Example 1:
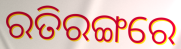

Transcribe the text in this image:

ରତିରଙ୍ଗରେ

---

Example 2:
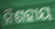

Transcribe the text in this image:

ନିଶହାୟ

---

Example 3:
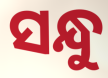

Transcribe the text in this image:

ସନ୍ଧୁ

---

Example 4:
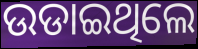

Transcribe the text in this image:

ଉଡାଇଥିଲେ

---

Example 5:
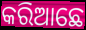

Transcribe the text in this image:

କରିଆଛେ